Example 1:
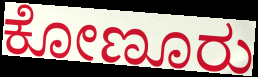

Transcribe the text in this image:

ಕೋಣೂರು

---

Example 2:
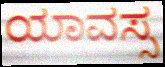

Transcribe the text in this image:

ಯಾವಸ್ಸ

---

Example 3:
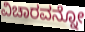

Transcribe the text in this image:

ವಿಚಾರವನ್ನೋ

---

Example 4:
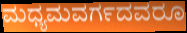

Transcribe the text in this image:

ಮಧ್ಯಮವರ್ಗದವರೂ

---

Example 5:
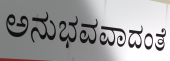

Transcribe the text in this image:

ಅನುಭವವಾದಂತೆ